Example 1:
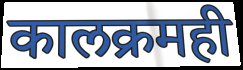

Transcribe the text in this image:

कालक्रमही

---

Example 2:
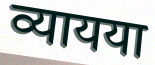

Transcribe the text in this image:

व्यायया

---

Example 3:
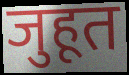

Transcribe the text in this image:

जुहूत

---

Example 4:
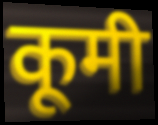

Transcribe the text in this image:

कूमी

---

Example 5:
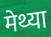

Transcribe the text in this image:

मेथ्या